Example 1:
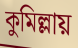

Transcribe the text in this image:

কুমিল্লায়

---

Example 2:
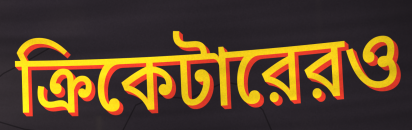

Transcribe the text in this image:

ক্রিকেটারেরও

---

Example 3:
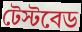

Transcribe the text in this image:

টেস্টবেড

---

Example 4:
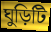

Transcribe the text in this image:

ঘুড়িটি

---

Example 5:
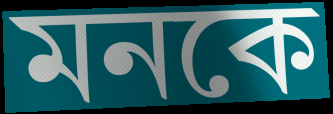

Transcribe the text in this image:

মনকে